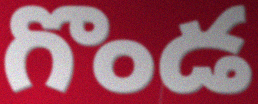
గొండ